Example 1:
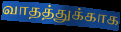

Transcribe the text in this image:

வாதத்துக்காக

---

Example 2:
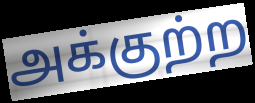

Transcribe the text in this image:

அக்குற்ற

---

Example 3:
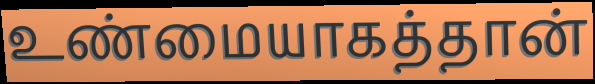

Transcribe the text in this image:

உண்மையாகத்தான்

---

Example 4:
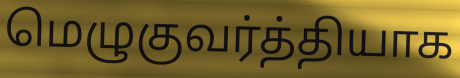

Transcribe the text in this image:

மெழுகுவர்த்தியாக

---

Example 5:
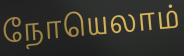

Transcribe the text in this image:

நோயெலாம்